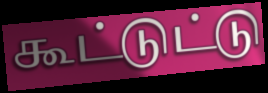
கூட்டுட்டு